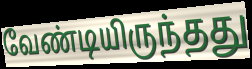
வேண்டியிருந்தது